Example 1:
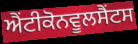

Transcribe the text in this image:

ਐਂਟੀਕੋਨਵੂਲਸੈਂਟਸ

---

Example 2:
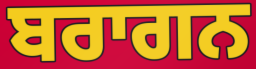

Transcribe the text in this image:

ਬਰਾਗਨ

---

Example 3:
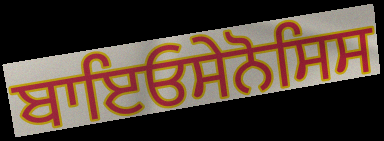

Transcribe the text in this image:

ਬਾਇਓਸੇਨੋਸਿਸ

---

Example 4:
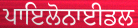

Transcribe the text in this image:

ਪਾਇਲੋਨਾਈਡਲ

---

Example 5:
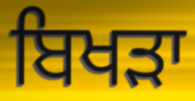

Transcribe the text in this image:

ਬਿਖੜਾ